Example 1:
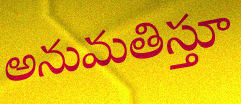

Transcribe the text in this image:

అనుమతిస్తూ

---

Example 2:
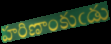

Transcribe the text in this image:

హరిణాంకుఁడు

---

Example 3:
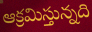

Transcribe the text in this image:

ఆక్రమిస్తున్నది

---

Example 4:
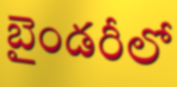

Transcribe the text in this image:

బైండరీలో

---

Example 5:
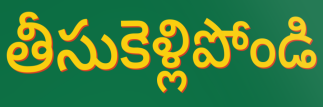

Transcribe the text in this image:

తీసుకెళ్లిపోండి